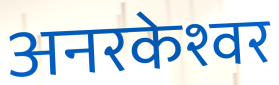
अनरकेश्वर